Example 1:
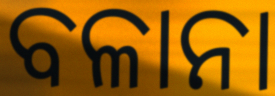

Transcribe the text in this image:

ବଳାନା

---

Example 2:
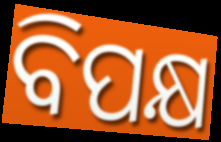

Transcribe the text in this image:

ବିପକ୍ଷ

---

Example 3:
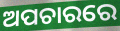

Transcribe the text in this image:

ଅପଚାରରେ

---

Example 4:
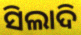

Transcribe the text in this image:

ସିଲାଦି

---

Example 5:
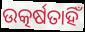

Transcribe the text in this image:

ଉତ୍କର୍ଷତାହିଁ